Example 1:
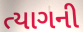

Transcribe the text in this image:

ત્યાગની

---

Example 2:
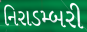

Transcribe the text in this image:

નિરાડમ્બરી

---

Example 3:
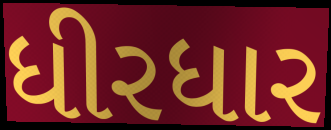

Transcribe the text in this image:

ધીરધાર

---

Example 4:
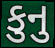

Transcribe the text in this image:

કુનુ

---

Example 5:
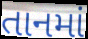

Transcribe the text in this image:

તાનમાં